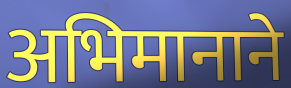
अभिमानाने